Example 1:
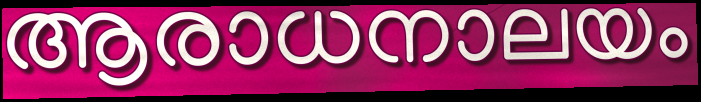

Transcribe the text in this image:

ആരാധനാലയം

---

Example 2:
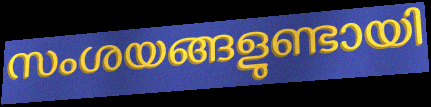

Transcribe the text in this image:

സംശയങ്ങളുണ്ടായി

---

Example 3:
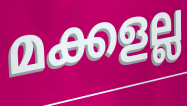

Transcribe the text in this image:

മക്കളല്ല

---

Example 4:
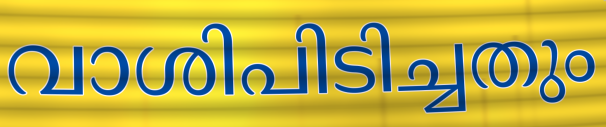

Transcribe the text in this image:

വാശിപിടിച്ചതും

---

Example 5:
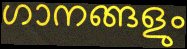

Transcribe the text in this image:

ഗാനങ്ങളും